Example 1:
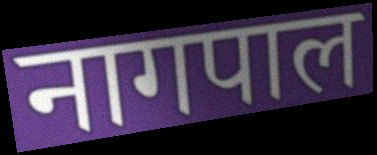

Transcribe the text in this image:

नागपाल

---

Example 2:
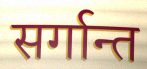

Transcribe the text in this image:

सर्गान्त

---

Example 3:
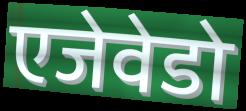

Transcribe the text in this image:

एजेवेडो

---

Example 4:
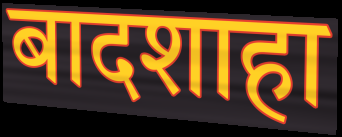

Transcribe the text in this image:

बादशाहा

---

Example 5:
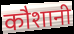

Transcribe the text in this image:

कौशानी